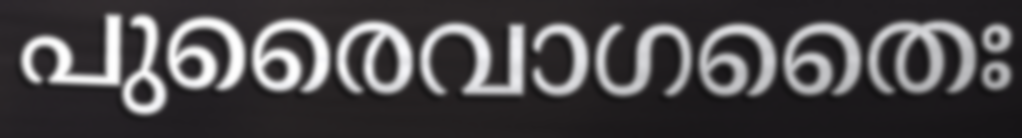
പുരൈവാഗതൈഃ